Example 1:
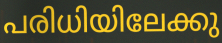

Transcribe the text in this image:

പരിധിയിലേക്കു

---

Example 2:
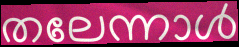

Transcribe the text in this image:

തലേന്നാൾ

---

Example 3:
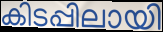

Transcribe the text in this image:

കിടപ്പിലായി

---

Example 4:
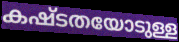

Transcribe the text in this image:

കഷ്ടതയോടുള്ള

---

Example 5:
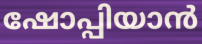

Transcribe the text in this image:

ഷോപ്പിയാൻ